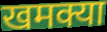
खमक्या